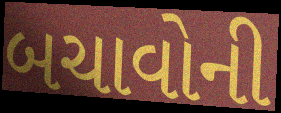
બચાવોની